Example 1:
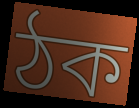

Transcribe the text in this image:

ঠক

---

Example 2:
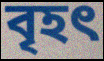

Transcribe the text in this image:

বৃহৎ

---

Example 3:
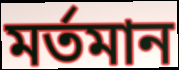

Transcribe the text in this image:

মর্তমান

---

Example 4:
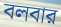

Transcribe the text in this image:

বলবার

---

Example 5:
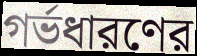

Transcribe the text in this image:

গর্ভধারণের